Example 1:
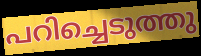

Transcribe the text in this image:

പറിച്ചെടുത്തു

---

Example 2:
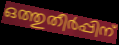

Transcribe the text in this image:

ഒത്തുതീർപ്പിന്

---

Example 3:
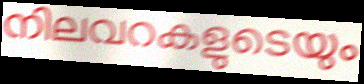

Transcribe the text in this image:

നിലവറകളുടെയും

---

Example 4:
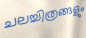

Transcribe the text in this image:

ചലച്ചിത്രങ്ങളും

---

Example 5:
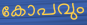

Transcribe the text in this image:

കോപവും